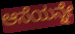
ಆಸೆಯನ್ನೇ